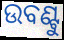
ଉବଣ୍ଟୁ